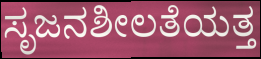
ಸೃಜನಶೀಲತೆಯತ್ತ